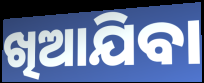
ଖିଆଯିବା